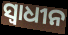
ସ୍ଵାଧୀନ